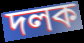
দলক